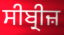
ਸੀਬ੍ਰੀਜ਼